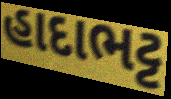
હાદાભટ્ટ